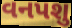
વનપશુ